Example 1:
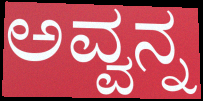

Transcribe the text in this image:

ಅವ್ವನ್ನ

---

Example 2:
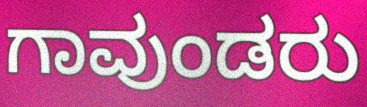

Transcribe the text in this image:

ಗಾವುಂಡರು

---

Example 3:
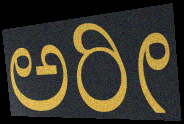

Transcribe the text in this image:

ಅರೀ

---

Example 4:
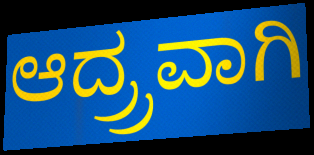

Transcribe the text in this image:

ಆದ್ರ್ರವಾಗಿ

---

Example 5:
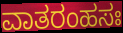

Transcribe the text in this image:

ವಾತರಂಹಸಃ